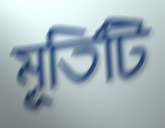
মূর্তিটি